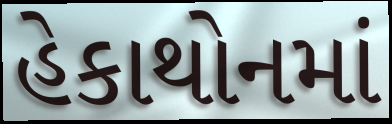
હેકાથોનમાં